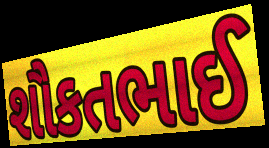
શૌકતભાઈ